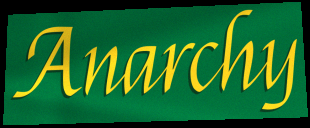
Anarchy